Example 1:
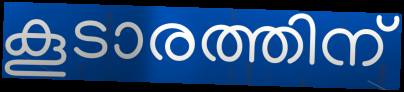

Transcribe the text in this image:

കൂടാരത്തിന്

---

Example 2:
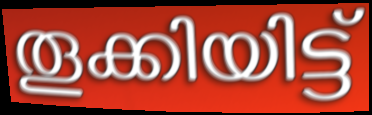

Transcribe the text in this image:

തൂക്കിയിട്ട്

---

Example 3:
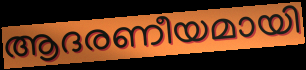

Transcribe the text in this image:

ആദരണീയമായി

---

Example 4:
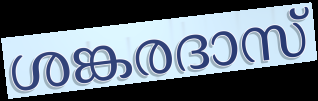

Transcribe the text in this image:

ശങ്കരദാസ്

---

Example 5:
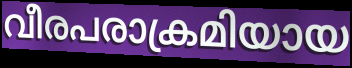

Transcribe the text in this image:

വീരപരാക്രമിയായ